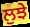
ਲੁਝੇ